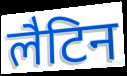
लैटिन